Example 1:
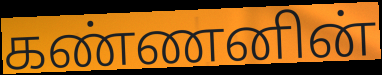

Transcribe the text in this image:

கண்ணனின்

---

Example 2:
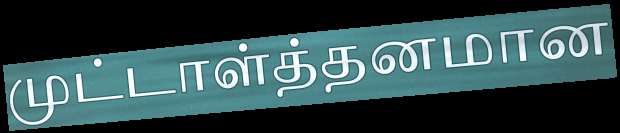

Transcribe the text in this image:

முட்டாள்த்தனமான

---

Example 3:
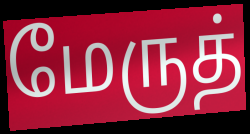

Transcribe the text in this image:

மேருத்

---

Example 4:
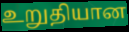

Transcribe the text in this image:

உறுதியான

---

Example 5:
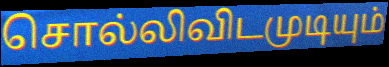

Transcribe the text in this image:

சொல்லிவிடமுடியும்